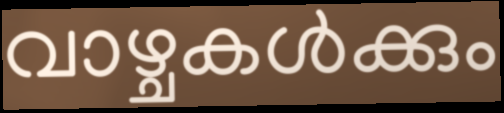
വാഴ്ചകൾക്കും